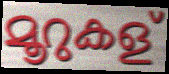
മൂറുകള്